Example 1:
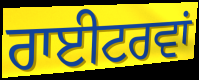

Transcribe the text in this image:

ਰਾਈਟਰਵਾਂ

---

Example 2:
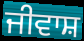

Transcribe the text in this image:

ਜੀਵਾਸ਼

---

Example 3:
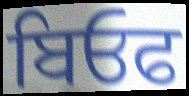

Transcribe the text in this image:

ਬਿਓਫ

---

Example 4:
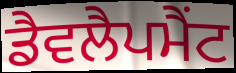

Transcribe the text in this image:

ਡੈਵਲੈਪਮੈਂਟ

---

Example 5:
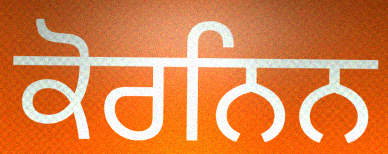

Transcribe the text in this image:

ਕੋਰਨਿਨ